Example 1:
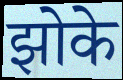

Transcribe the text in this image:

झोके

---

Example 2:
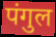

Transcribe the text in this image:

पंगुल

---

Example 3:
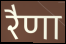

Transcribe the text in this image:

रैणा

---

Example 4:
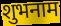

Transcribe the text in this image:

शुभनाम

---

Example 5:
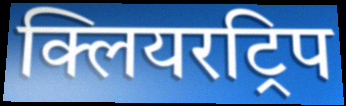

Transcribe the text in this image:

क्लियरट्रिप